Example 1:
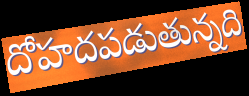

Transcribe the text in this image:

దోహదపడుతున్నది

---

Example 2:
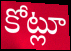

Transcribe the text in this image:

కోట్లూ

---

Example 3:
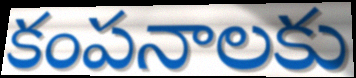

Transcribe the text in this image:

కంపనాలకు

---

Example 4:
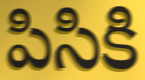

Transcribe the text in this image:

పిసికి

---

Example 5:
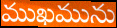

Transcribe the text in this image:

ముఖమును